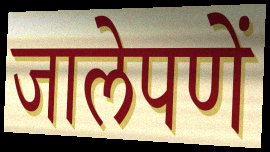
जालेपणें